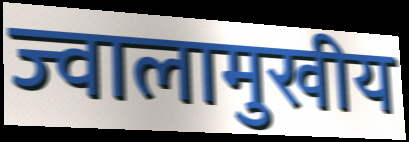
ज्वालामुखीय